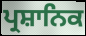
ਪ੍ਰਸ਼ਾਨਿਕ